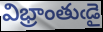
విభ్రాంతుఁడై